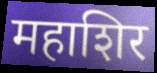
महाशिर